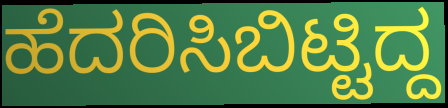
ಹೆದರಿಸಿಬಿಟ್ಟಿದ್ದ